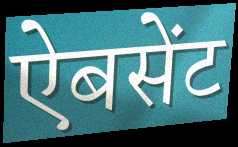
ऐबसेंट